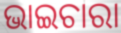
ଭାଇଚାରା